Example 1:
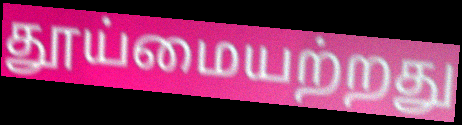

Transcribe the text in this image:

தூய்மையற்றது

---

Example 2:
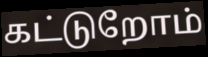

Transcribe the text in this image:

கட்டுறோம்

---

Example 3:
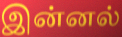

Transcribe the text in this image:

இன்னல்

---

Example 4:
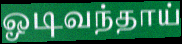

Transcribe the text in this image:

ஓடிவந்தாய்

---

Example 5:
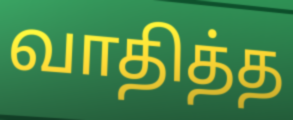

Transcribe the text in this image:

வாதித்த